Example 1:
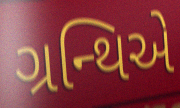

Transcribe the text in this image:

ગ્રન્થિએ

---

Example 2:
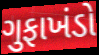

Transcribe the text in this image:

ગુફાખંડો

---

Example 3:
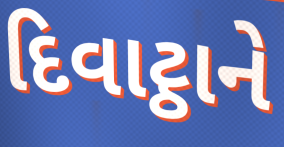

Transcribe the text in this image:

દિવાટ્ઠાને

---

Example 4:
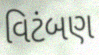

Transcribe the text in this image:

વિટંબણ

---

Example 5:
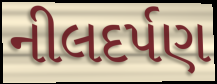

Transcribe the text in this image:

નીલદર્પણ